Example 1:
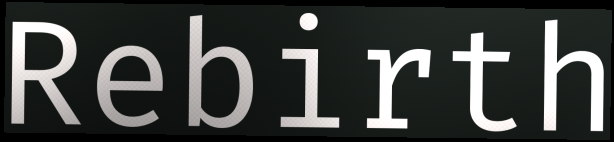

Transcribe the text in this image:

Rebirth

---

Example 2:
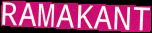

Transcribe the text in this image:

RAMAKANT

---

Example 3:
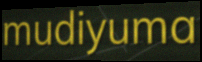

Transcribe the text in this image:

mudiyuma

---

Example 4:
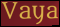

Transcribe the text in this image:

Vaya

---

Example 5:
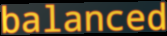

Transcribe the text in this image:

balanced